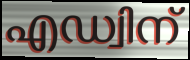
എഡ്വിന്